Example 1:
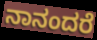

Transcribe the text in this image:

ನಾನಂದರೆ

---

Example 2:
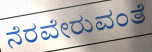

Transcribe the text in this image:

ನೆರವೇರುವಂತೆ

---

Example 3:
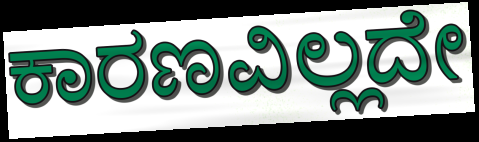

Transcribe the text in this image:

ಕಾರಣವಿಲ್ಲದೇ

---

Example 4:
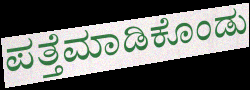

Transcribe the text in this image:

ಪತ್ತೆಮಾಡಿಕೊಂಡು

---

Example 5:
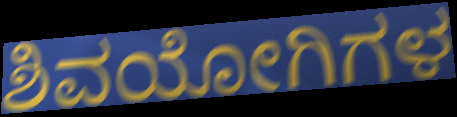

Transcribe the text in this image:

ಶಿವಯೋಗಿಗಳ